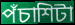
পঁচাশিটা